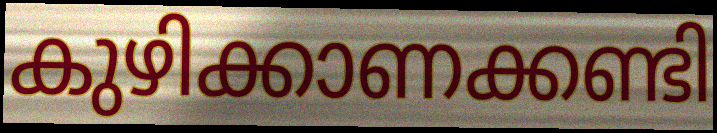
കുഴിക്കാണക്കണ്ടി